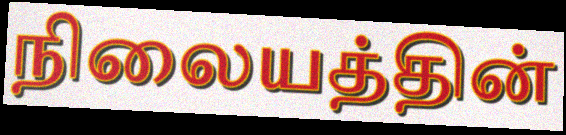
நிலையத்தின்